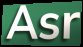
Asr